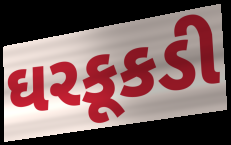
ઘરકૂકડી